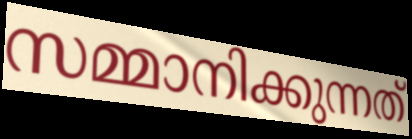
സമ്മാനിക്കുന്നത്